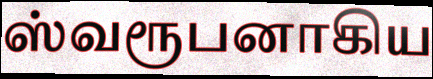
ஸ்வரூபனாகிய